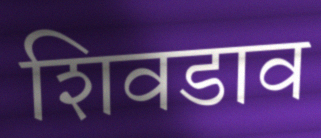
शिवडाव